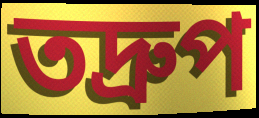
তদ্ৰুপ